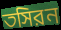
তসিরন